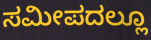
ಸಮೀಪದಲ್ಲೂ